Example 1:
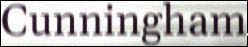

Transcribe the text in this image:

Cunningham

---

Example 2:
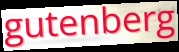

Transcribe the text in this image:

gutenberg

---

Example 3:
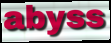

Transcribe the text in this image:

abyss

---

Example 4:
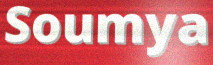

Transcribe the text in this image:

Soumya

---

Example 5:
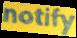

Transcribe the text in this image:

notify